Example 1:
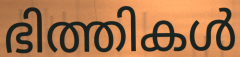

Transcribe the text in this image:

ഭിത്തികൾ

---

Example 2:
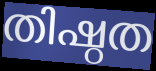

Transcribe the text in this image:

തിഷ്ഠത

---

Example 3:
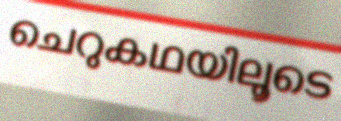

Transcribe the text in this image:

ചെറുകഥയിലൂടെ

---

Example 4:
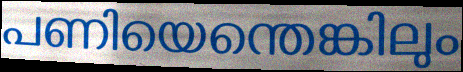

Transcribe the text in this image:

പണിയെന്തെങ്കിലും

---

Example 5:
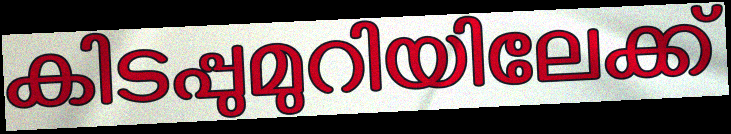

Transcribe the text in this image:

കിടപ്പുമുറിയിലേക്ക്